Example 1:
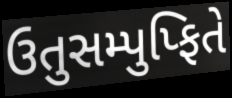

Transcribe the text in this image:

ઉતુસમ્પુપ્ફિતે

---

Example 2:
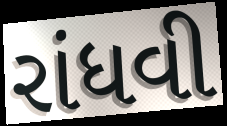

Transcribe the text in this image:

રાંધવી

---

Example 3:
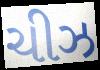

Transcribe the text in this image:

ચીઝ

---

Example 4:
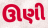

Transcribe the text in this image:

ઊણી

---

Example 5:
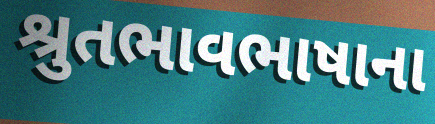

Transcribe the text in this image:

શ્રુતભાવભાષાના